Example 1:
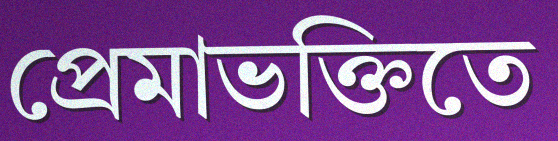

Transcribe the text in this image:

প্রেমাভক্তিতে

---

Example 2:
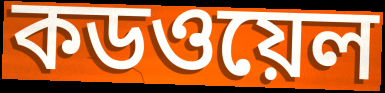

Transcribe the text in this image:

কডওয়েল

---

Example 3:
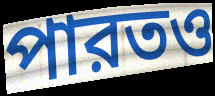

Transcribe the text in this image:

পারতও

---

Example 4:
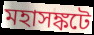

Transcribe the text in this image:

মহাসঙ্কটে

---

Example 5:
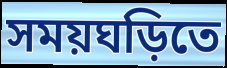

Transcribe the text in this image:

সময়ঘড়িতে